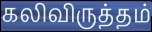
கலிவிருத்தம்